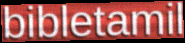
bibletamil